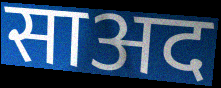
साअद